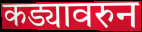
कड्यावरुन